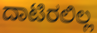
ದಾಟಿರಲಿಲ್ಲ